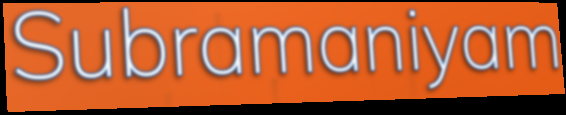
Subramaniyam